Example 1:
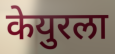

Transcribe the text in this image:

केयुरला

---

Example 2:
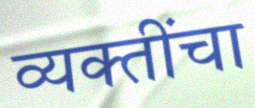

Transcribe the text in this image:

व्यक्‍तींचा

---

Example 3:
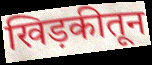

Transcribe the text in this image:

खिड़कीतून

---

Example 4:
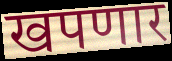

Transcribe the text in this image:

खपणार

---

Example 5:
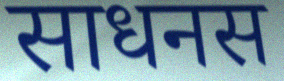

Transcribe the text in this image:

साधनस